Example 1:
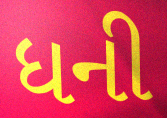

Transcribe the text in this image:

ધની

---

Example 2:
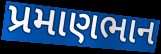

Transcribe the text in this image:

પ્રમાણભાન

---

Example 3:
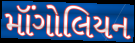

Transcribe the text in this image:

મૉંગોલિયન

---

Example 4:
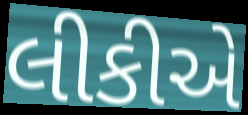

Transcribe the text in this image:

લીકીએ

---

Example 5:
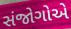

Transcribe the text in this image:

સંજોગોએ